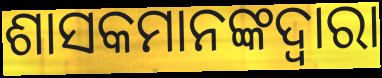
ଶାସକମାନଙ୍କଦ୍ୱାରା